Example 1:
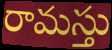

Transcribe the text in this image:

రామస్తు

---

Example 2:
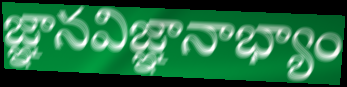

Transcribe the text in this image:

జ్ఞానవిజ్ఞానాభ్యాం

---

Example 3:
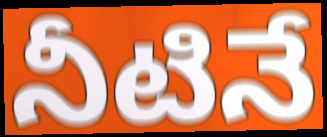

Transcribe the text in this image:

నీటినే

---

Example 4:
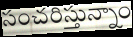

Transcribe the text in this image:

సంచరిస్తున్నాం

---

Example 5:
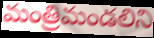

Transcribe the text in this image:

మంత్రిమండలిని